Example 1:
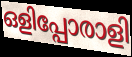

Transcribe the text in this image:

ഒളിപ്പോരാളി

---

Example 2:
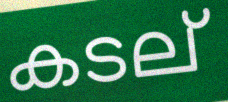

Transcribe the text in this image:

കടല്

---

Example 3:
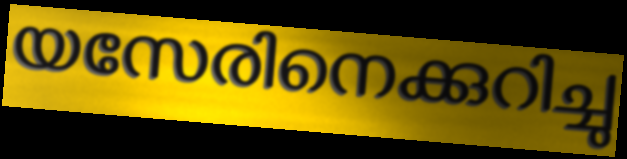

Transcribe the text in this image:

യസേരിനെക്കുറിച്ചു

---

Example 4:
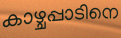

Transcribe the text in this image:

കാഴ്ചപ്പാടിനെ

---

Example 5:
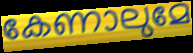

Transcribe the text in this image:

കേണാലുമേ